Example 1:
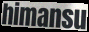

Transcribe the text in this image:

himansu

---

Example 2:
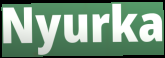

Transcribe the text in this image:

Nyurka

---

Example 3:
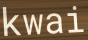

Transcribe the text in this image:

kwai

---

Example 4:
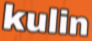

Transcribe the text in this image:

kulin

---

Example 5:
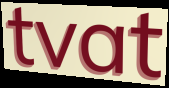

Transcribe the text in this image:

tvat